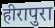
हीरापुरा